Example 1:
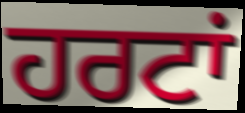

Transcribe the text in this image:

ਹਰਟਾਂ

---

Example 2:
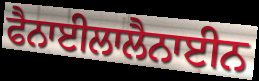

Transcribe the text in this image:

ਫੈਨਾਈਲਾਲੈਨਾਈਨ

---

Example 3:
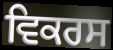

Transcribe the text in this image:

ਵਿਕਰਸ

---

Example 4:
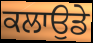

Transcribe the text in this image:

ਕਲਾਉਡੇ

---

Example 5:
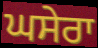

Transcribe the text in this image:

ਘਸੇਰਾ